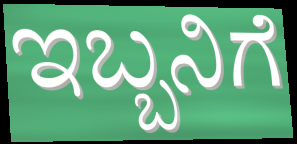
ಇಬ್ಬನಿಗೆ